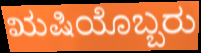
ಋಷಿಯೊಬ್ಬರು